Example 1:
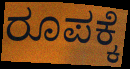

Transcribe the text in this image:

ರೂಪಕ್ಕೆ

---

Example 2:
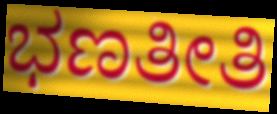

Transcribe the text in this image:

ಭಣತೀತಿ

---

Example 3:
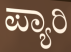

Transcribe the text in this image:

ಪ್ಯಾರಿ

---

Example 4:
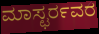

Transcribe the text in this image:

ಮಾಸ್ಟರ್ರವರ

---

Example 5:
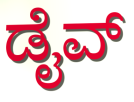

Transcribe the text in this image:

ಡೈವ್